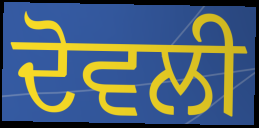
ਦੋਵਲੀ